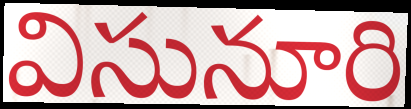
విసునూరి